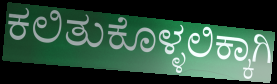
ಕಲಿತುಕೊಳ್ಳಲಿಕ್ಕಾಗಿ